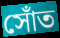
সোঁত